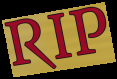
RIP